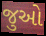
જુઓ